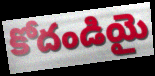
కోదండియై